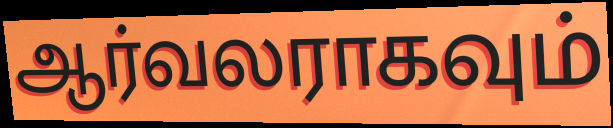
ஆர்வலராகவும்